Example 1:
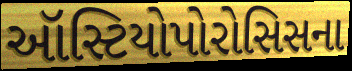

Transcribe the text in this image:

ઑસ્ટિયોપોરોસિસના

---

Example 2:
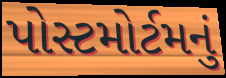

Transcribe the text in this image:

પોસ્ટમોર્ટમનું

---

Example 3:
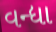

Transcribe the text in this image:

વન્દ્યા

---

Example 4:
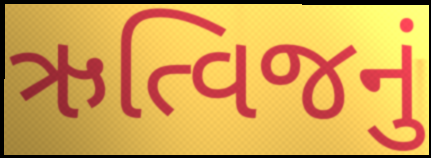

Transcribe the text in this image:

ઋત્વિજનું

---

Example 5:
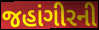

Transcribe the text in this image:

જહાંગીરની